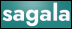
sagala